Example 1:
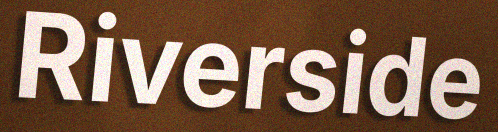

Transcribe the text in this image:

Riverside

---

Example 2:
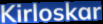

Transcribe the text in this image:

Kirloskar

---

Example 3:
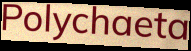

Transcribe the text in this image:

Polychaeta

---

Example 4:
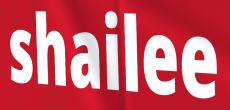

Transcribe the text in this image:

shailee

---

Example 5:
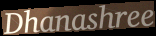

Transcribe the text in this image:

Dhanashree